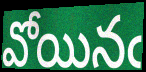
వోయినఁ